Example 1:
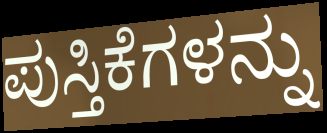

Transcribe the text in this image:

ಪುಸ್ತಿಕೆಗಳನ್ನು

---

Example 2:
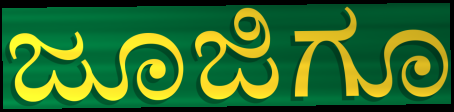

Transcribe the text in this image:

ಜೂಜಿಗೂ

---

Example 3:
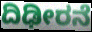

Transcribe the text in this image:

ದಿಢೀರನೆ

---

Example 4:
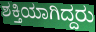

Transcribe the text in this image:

ಶಕ್ತಿಯಾಗಿದ್ದರು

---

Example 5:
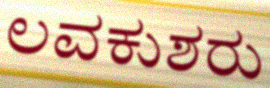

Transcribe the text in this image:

ಲವಕುಶರು